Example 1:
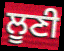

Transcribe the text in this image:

ਲੂਣੀ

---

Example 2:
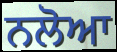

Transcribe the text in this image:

ਨਲੋਆ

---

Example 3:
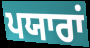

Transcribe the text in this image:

ਪਯਾਰਾਂ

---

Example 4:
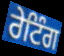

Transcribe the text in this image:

ਰੇਟਿੰਗ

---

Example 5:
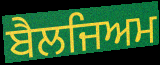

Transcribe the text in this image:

ਬੈਲਜਿਅਮ